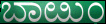
ಬಾೞುಂ